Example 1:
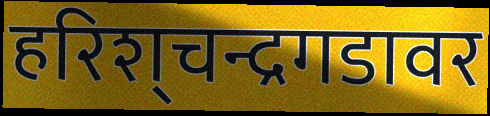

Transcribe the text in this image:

हरिश्चन्द्रगडावर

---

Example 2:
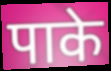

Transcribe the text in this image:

पाके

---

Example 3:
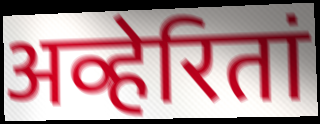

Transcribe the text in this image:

अव्हेरितां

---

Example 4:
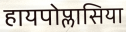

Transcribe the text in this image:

हायपोप्लासिया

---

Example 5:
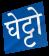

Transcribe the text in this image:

घेट्टो